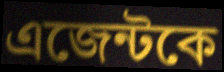
এজেন্টকে